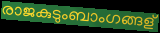
രാജകുടുംബാംഗങ്ങള്